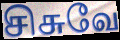
சிசுவே